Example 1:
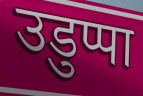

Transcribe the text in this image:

उडुप्पा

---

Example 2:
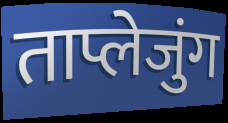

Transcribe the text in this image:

ताप्लेजुंग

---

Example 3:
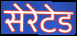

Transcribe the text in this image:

सेरेटेड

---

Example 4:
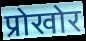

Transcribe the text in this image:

प्रोखोर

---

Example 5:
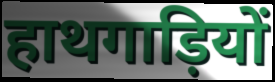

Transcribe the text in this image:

हाथगाड़ियों